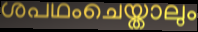
ശപഥംചെയ്താലും